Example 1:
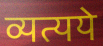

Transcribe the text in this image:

व्यत्यये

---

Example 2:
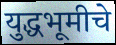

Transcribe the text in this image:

युद्धभूमीचे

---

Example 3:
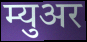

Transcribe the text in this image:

म्युअर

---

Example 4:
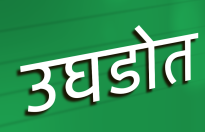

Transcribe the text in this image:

उघडोत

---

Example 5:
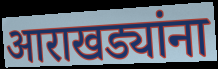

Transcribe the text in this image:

आराखड्यांना